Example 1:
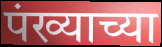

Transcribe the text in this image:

पंख्याच्या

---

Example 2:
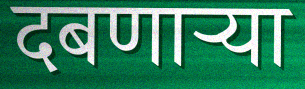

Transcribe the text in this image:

दबणाऱ्या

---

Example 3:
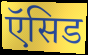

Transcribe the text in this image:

ऍसिड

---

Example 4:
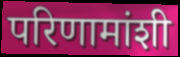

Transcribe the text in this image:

परिणामांशी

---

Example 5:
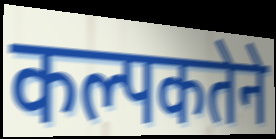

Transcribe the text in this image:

कल्पकतेने